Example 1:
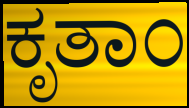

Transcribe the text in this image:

ಕೃತಾಂ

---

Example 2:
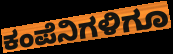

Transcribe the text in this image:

ಕಂಪೆನಿಗಳಿಗೂ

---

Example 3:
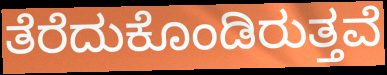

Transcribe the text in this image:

ತೆರೆದುಕೊಂಡಿರುತ್ತವೆ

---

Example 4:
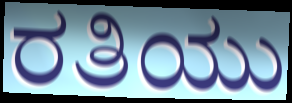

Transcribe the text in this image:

ರತಿಯು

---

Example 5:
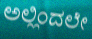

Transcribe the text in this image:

ಅಲ್ಲಿಂದಲೇ